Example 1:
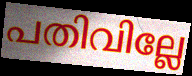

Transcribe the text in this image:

പതിവില്ലേ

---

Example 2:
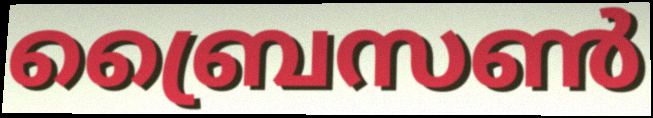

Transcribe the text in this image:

ബ്രൈസൺ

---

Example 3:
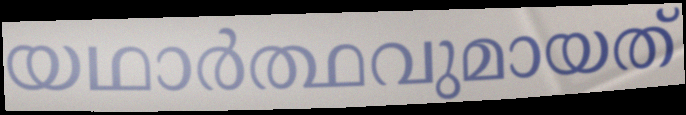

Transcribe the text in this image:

യഥാർത്ഥവുമായത്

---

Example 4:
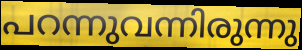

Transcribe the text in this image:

പറന്നുവന്നിരുന്നു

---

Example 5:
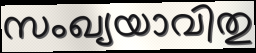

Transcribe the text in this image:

സംഖ്യയാവിതു